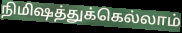
நிமிஷத்துக்கெல்லாம்